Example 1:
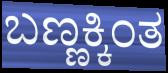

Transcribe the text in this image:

ಬಣ್ಣಕ್ಕಿಂತ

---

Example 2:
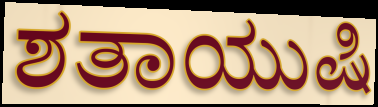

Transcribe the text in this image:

ಶತಾಯುಷಿ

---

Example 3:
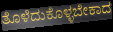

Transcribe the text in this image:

ತೊಳೆದುಕೊಳ್ಳಬೇಕಾದ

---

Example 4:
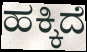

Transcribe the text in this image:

ಹಕ್ಕಿದೆ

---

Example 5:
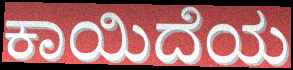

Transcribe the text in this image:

ಕಾಯಿದೆಯ